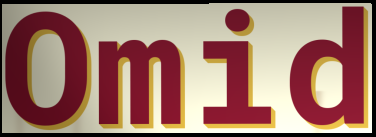
Omid